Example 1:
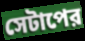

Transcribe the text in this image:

সেটাপের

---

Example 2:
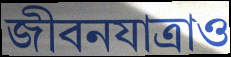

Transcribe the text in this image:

জীবনযাত্রাও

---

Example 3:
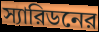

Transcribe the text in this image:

স্যারিডনের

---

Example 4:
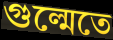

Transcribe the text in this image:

গুল্মেতে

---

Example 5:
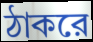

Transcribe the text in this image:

ঠাকরে